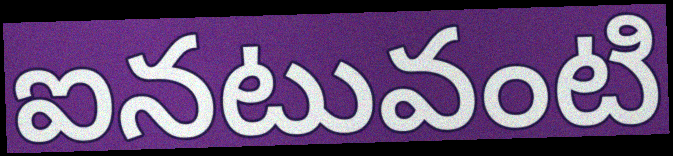
ఐనటువంటి